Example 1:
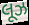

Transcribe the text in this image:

લૂઝ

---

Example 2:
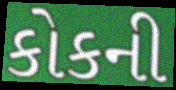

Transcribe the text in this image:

કોકની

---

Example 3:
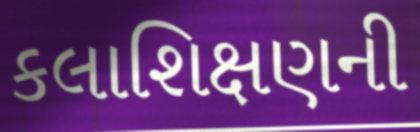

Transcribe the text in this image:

કલાશિક્ષણની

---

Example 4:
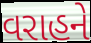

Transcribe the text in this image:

વરાહને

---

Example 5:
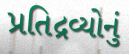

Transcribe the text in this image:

પ્રતિદ્રવ્યોનું